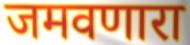
जमवणारा